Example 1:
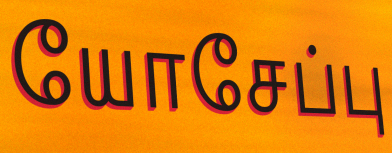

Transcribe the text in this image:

யோசேப்பு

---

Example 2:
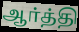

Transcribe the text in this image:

ஆர்த்தி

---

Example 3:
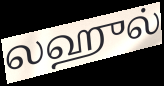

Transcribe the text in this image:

லஹுல்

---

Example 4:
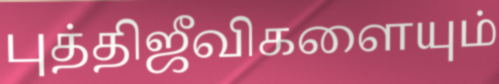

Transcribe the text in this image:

புத்திஜீவிகளையும்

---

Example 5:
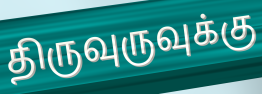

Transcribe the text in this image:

திருவுருவுக்கு